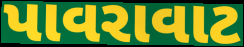
પાવરાવાટ